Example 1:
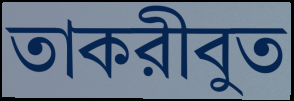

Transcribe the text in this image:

তাকরীবুত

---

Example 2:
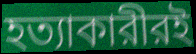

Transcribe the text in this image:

হত্যাকারীরই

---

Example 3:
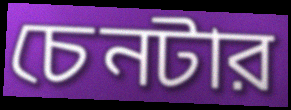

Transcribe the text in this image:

চেনটার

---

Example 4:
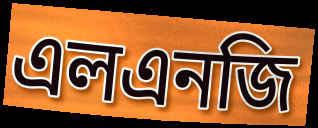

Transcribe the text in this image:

এলএনজি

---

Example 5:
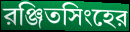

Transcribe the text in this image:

রঞ্জিতসিংহের